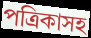
পত্রিকাসহ